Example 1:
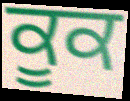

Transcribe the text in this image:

ਕੂਕ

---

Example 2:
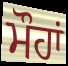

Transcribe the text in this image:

ਮੌਹਾਂ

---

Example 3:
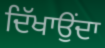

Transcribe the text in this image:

ਦਿੱਖਾਉਂਦਾ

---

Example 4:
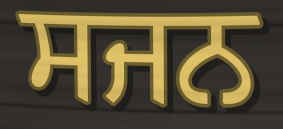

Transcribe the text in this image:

ਸਜਨ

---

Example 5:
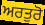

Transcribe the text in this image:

ਅਰਤੁਰੋ